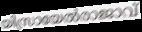
യിസ്രായേൽരാജാവ്